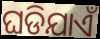
ଘଡିଯାଏଁ